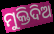
ମୁକ୍ତିଦିଅ